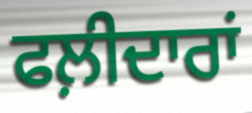
ਫਲ਼ੀਦਾਰਾਂ